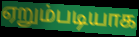
ஏறும்படியாக